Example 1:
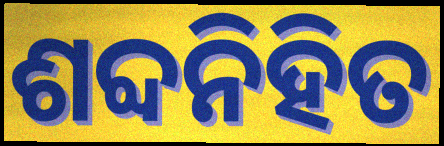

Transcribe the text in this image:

ଶବ୍ଦନିହିତ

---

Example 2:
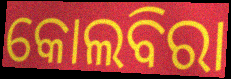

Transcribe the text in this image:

କୋଲବିରା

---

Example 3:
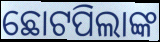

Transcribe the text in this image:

ଛୋଟପିଲାଙ୍କ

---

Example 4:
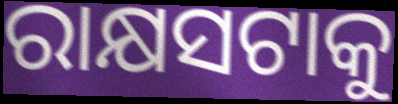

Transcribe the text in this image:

ରାକ୍ଷସଟାକୁ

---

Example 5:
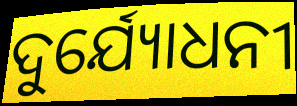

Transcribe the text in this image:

ଦୁର୍ଯ୍ୟୋଧନୀ